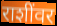
राशींवर